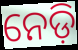
ନେଡ଼ି